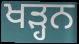
ਖੜ੍ਹਨ